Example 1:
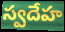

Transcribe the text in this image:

స్వదేహ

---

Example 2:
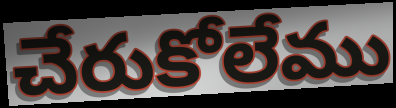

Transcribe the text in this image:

చేరుకోలేము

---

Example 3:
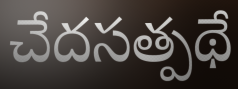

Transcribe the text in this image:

చేదసత్పథే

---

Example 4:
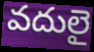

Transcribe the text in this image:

వదులై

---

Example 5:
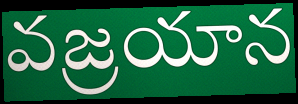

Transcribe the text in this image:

వజ్రయాన